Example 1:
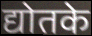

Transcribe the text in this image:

द्योतके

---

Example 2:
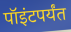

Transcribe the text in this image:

पॉइंटपर्यंत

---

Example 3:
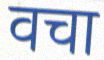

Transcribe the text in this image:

वचा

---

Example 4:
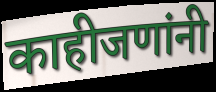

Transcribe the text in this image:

काहीजणांनी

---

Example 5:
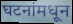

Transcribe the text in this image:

घटनांमधून